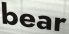
bear